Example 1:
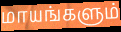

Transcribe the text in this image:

மாயங்களும்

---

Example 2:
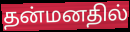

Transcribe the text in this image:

தன்மனதில்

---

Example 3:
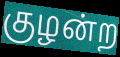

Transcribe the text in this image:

குழன்ற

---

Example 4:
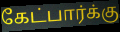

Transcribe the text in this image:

கேட்பார்க்கு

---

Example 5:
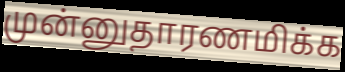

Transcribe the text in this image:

முன்னுதாரணமிக்க